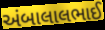
અંબાલાલભાઈ